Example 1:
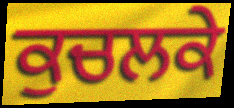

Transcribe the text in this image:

ਕੁਚਲਕੇ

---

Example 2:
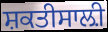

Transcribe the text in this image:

ਸ਼ਕਤੀਸਾਲ਼ੀ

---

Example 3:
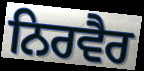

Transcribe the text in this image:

ਨਿਰਵੈਰ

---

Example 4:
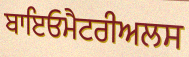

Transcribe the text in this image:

ਬਾਇਓਮੈਟਰੀਅਲਸ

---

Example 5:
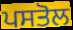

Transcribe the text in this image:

ਪਸਤੋਲ